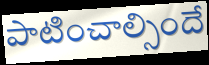
పాటించాల్సిందే